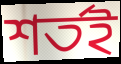
শর্তই